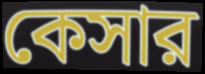
কেসার